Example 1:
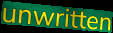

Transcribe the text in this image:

unwritten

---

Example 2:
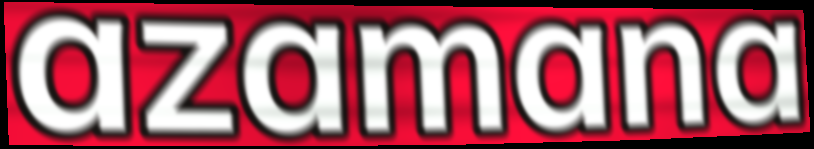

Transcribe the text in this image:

azamana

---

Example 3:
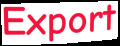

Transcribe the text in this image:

Export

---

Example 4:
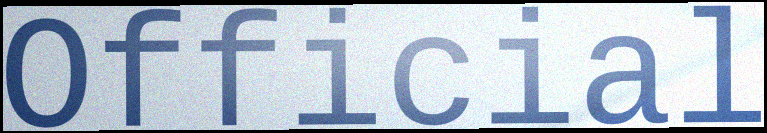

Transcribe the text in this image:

Official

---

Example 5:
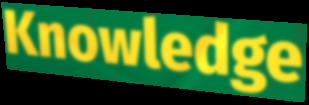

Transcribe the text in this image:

Knowledge